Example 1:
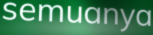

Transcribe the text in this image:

semuanya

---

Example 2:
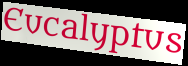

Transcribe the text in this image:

Eucalyptus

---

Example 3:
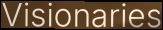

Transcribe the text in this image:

Visionaries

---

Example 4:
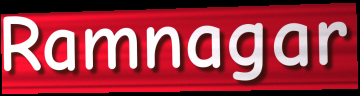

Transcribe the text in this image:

Ramnagar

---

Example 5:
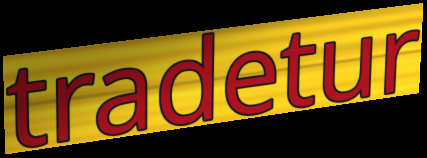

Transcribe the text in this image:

tradetur